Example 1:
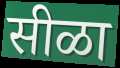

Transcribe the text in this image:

सीळा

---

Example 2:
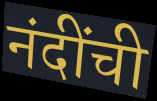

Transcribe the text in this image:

नंदींची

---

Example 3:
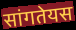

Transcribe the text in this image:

सांगतेयस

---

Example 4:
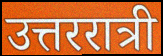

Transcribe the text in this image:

उत्तररात्री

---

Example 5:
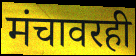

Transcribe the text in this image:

मंचावरही